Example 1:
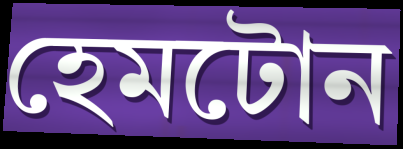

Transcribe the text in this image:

হেমটোন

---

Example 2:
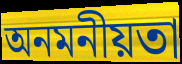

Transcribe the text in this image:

অনমনীয়তা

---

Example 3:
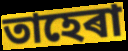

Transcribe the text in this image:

তাহেৰা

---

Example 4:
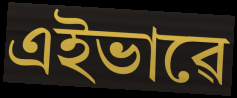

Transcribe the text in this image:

এইভাৱে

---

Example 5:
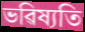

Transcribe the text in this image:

ভৱিষ্যতি